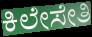
ಕಿಲೇಸೇತಿ